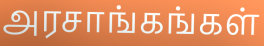
அரசாங்கங்கள்